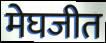
मेघजीत